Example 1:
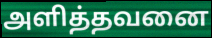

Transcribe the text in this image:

அளித்தவனை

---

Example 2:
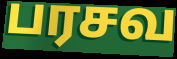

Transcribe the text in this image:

பரசவ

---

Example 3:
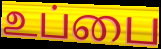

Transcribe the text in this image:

உப்பை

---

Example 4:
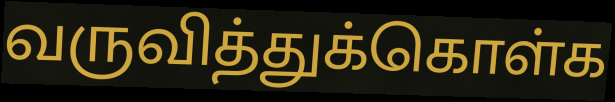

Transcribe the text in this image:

வருவித்துக்கொள்க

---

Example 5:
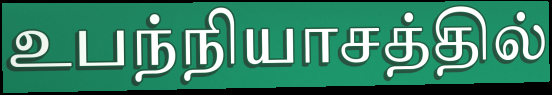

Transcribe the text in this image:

உபந்நியாசத்தில்